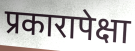
प्रकारापेक्षा